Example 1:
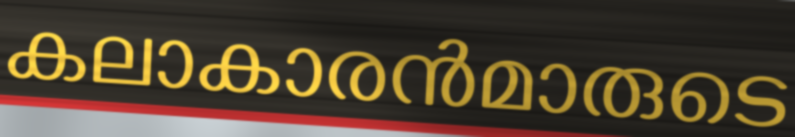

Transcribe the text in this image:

കലാകാരൻമാരുടെ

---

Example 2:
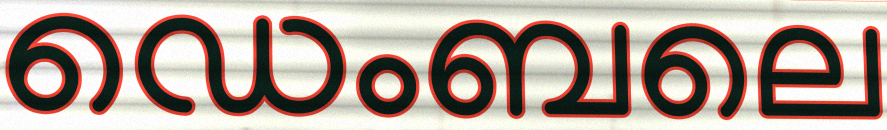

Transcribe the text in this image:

ഡെംബലെ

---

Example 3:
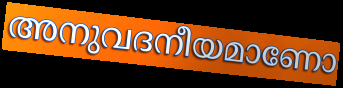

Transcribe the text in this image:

അനുവദനീയമാണോ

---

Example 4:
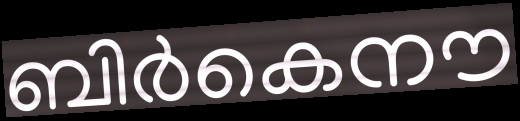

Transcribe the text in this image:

ബിർകെനൗ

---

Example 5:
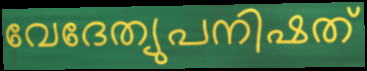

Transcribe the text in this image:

വേദേത്യുപനിഷത്